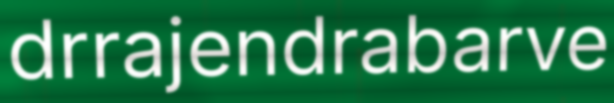
drrajendrabarve